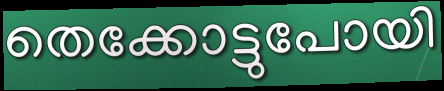
തെക്കോട്ടുപോയി